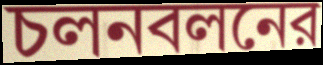
চলনবলনের